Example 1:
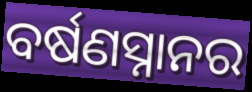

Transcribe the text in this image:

ବର୍ଷଣସ୍ନାନର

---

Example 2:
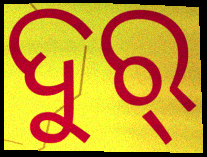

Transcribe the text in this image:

ଦୁର୍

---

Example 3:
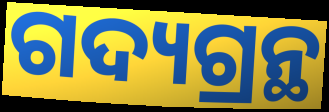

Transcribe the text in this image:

ଗଦ୍ୟଗ୍ରନ୍ଥ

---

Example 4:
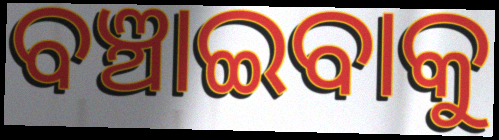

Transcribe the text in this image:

ବଞ୍ଚାଇବାକୁ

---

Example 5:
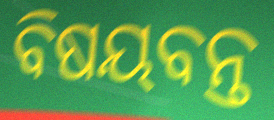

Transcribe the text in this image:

ବିଷୟବନ୍ତ